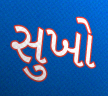
સુખો